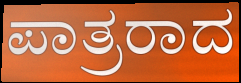
ಪಾತ್ರರಾದ